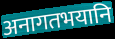
अनागतभयानि